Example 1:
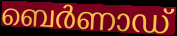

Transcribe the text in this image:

ബെർണാഡ്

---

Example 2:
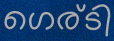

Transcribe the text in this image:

ഗെര്ടി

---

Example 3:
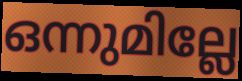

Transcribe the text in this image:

ഒന്നുമില്ലേ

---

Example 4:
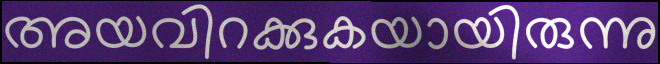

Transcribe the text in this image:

അയവിറക്കുകയായിരുന്നു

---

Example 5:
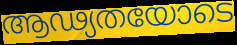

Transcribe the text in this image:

ആഢ്യതയോടെ